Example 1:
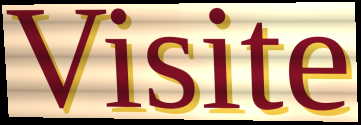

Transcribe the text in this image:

Visite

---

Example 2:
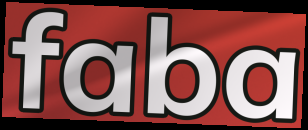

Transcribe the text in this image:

faba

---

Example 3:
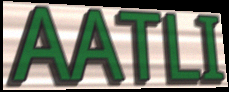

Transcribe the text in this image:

AATLI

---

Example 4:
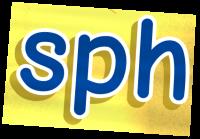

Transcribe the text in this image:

sph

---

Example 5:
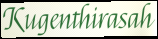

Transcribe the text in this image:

Kugenthirasah